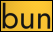
bun